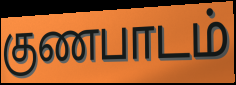
குணபாடம்